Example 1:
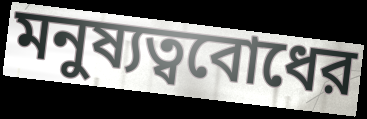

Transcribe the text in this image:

মনুষ্যত্ববোধের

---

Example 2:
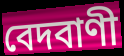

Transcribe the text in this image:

বেদবাণী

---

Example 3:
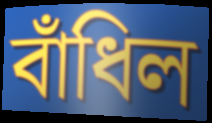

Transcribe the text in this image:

বাঁধিল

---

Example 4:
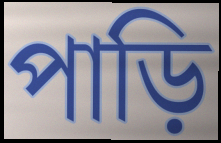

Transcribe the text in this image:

পাড়ি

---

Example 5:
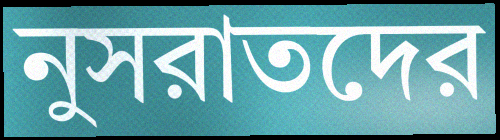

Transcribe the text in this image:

নুসরাতদের